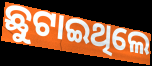
ଛୁଟାଇଥିଲେ